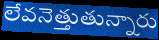
లేవనెత్తుతున్నారు